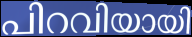
പിറവിയായി